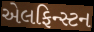
એલફિન્સ્ટન